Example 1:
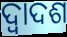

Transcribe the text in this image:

ଦ୍ବାଦଶ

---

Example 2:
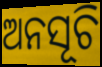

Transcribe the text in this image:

ଅନସୂଚି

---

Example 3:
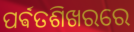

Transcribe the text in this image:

ପର୍ଵତଶିଖରରେ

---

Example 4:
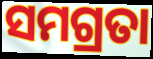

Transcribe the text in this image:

ସମଗ୍ରତା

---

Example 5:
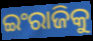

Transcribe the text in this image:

ଇଂରାଜିକୁ